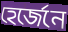
হেৰ্জেনে